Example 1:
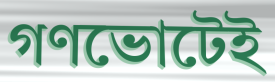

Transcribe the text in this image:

গণভোটেই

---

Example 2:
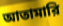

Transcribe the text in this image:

আতামারি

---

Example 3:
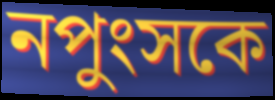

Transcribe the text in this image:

নপুংসকে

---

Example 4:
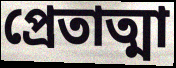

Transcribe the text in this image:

প্রেতাত্মা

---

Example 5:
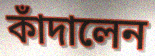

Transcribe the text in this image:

কাঁদালেন